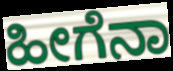
ಹೀಗೆನಾ